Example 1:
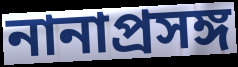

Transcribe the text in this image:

নানাপ্রসঙ্গ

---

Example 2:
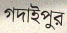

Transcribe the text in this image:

গদাইপুর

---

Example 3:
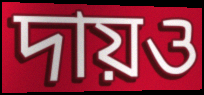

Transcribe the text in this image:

দায়ও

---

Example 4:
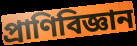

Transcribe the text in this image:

প্রাণিবিজ্ঞান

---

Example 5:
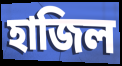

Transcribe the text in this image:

হাজিল